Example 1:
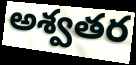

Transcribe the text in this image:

అశ్వతర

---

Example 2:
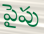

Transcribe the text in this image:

పైపు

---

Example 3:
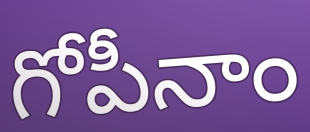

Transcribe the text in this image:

గోపీనాం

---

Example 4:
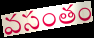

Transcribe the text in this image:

వసంతం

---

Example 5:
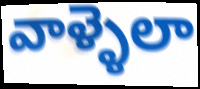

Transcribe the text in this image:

వాళ్ళెలా